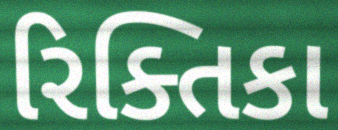
રિક્તિકા